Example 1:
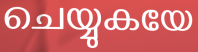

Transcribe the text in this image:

ചെയ്യുകയേ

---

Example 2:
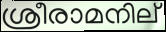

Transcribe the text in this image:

ശ്രീരാമനില്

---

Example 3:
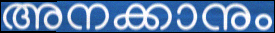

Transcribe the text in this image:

അനക്കാനും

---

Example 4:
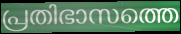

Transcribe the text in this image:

പ്രതിഭാസത്തെ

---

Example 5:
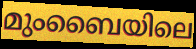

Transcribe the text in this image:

മുംബൈയിലെ